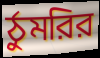
ঠুমরির